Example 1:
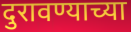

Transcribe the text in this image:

दुरावण्याच्या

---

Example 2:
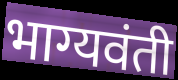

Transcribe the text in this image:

भाग्यवंती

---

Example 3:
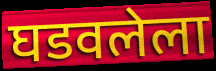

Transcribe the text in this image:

घडवलेला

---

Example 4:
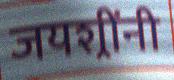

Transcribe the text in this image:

जयश्रींनी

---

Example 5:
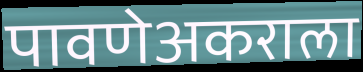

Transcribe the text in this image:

पावणेअकराला